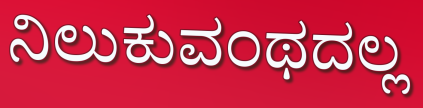
ನಿಲುಕುವಂಥದಲ್ಲ